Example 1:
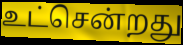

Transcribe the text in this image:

உட்சென்றது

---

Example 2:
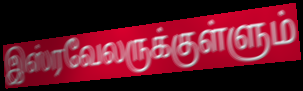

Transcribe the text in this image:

இஸ்ரவேலருக்குள்ளும்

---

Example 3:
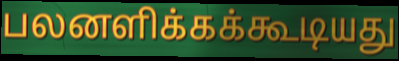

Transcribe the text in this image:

பலனளிக்கக்கூடியது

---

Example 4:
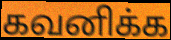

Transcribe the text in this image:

கவனிக்க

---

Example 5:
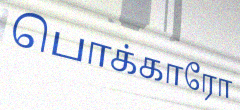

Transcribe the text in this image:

பொக்காரோ